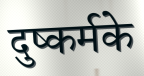
दुष्कर्मके